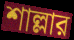
শাল্লার